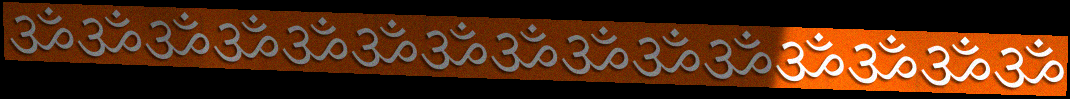
ॐॐॐॐॐॐॐॐॐॐॐॐॐॐॐ